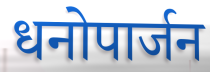
धनोपार्जन